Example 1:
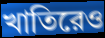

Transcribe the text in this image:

খাতিরেও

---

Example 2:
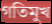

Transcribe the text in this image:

গতিমুখ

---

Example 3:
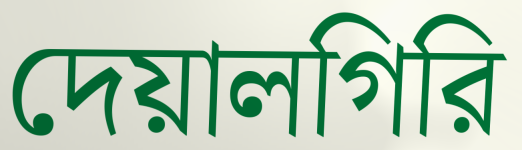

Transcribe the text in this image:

দেয়ালগিরি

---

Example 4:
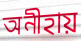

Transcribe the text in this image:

অনীহায়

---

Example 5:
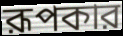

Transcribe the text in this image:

রূপকার